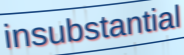
insubstantial